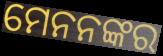
ମେନନଙ୍କର